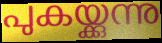
പുകയ്ക്കുന്നു